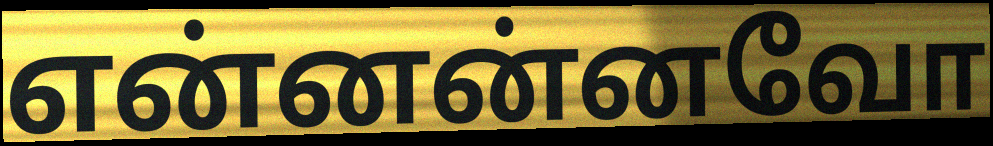
என்னன்னவோ